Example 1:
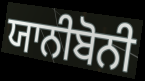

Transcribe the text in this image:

ਯਾਨੀਬੋਨੀ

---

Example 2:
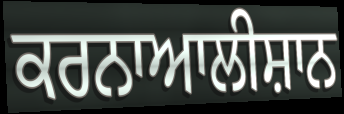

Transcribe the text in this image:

ਕਰਨਾਆਲੀਸ਼ਾਨ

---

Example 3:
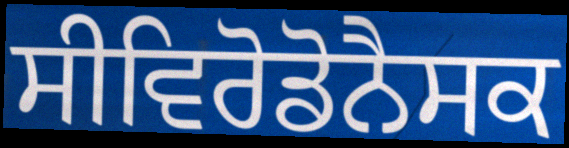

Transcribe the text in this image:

ਸੀਵਿਰੋਡੋਨੈਸਕ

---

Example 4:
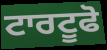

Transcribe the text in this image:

ਟਾਰਟੂਫੋ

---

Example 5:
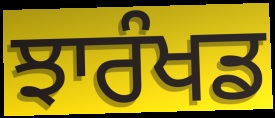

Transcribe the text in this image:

ਝਾਰੰਖਡ